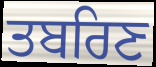
ਤਬਰਿਣ